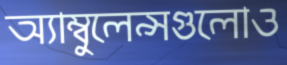
অ্যাম্বুলেন্সগুলোও